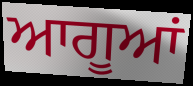
ਆਗੂਆਂ